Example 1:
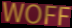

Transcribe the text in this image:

WOFF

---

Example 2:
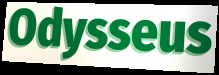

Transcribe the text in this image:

Odysseus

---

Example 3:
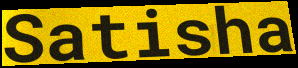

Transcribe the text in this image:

Satisha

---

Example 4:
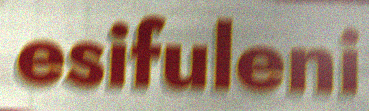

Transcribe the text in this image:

esifuleni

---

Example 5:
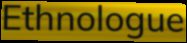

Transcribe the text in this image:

Ethnologue